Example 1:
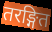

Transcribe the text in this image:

तरङ्गित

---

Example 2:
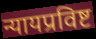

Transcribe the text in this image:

न्यायप्रविष्ट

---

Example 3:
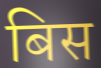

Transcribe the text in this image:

बिस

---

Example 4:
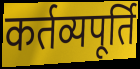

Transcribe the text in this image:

कर्तव्यपूर्ति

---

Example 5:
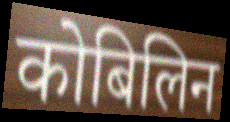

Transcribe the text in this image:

कोबिलिन